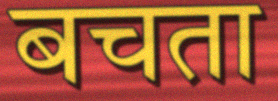
बचता